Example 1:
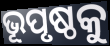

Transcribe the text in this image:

ଭୂପୃଷ୍ଠକୁ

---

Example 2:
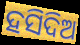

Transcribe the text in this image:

ହସିଦିଅ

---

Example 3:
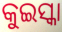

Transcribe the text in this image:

କୁଇସ୍କା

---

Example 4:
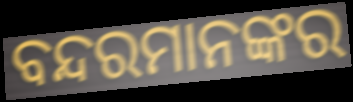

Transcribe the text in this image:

ବନ୍ଦରମାନଙ୍କର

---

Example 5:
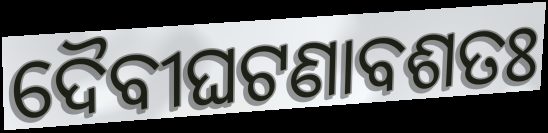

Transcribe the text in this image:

ଦୈବୀଘଟଣାବଶତଃ